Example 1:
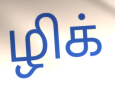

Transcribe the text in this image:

ழிக்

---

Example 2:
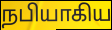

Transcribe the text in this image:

நபியாகிய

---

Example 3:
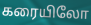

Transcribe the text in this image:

கரையிலோ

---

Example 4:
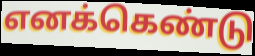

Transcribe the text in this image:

எனக்கெண்டு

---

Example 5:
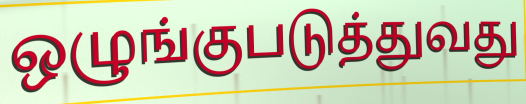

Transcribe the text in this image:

ஒழுங்குபடுத்துவது